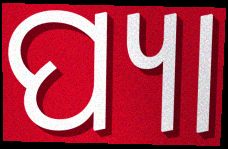
ପ୍ୟା